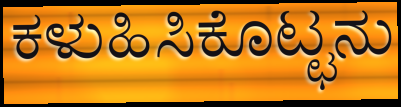
ಕಳುಹಿಸಿಕೊಟ್ಟನು